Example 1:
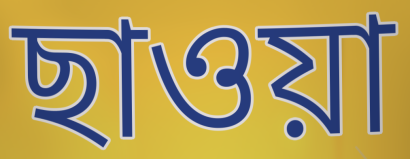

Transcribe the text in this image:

ছাওয়া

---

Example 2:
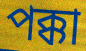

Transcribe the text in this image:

পক্কা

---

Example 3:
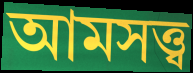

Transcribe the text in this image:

আমসত্ত্ব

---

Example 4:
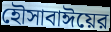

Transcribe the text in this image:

হৌসাবাঈয়ের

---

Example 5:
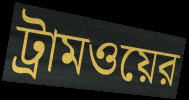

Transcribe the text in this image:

ট্রামওয়ের